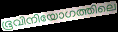
ഭൂവിനിയോഗത്തിലെ